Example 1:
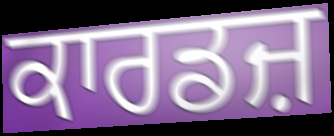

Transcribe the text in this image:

ਕਾਰਡਜ਼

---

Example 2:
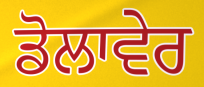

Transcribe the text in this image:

ਡੋਲਾਵੇਰ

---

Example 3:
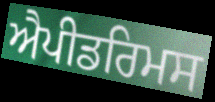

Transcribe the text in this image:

ਐਪੀਡਰਿਮਸ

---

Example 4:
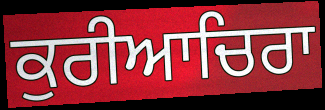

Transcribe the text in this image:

ਕੁਰੀਆਚਿਰਾ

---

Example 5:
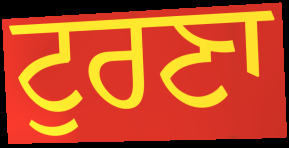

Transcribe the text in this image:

ਟੁਰਣਾ